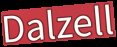
Dalzell